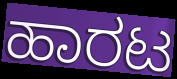
ಹಾರಟ